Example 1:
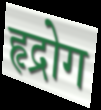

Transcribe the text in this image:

हृद्रोग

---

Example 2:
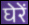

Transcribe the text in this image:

घेरें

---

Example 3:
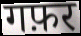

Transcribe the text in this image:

गफ़र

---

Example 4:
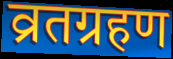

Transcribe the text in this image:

व्रतग्रहण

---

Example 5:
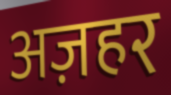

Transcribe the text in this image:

अज़हर